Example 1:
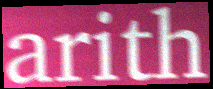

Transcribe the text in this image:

arith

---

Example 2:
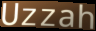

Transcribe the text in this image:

Uzzah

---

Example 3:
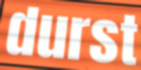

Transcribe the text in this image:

durst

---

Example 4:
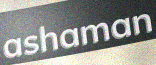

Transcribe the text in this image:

ashaman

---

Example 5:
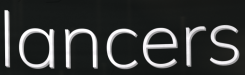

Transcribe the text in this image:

lancers